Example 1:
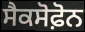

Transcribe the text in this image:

ਸੈਕਸੋਫ਼ੋਨ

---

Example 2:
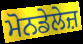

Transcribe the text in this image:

ਮੋਨਡੇਲੇਜ਼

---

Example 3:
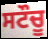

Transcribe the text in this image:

ਸਟੌਚੂ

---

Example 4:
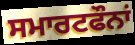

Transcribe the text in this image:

ਸਮਾਰਟਫੌਨਾਂ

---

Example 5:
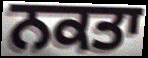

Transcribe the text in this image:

ਨਕਤਾ